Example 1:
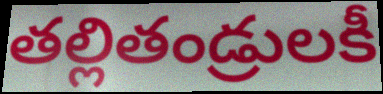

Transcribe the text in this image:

తల్లితండ్రులకీ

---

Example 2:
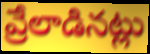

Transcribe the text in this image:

వ్రేలాడినట్లు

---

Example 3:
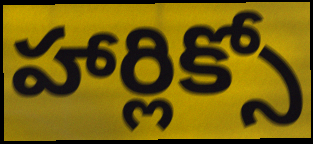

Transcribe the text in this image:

హార్లిక్సో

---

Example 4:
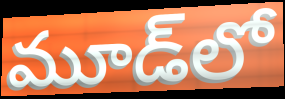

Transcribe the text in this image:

మూడ్‌లో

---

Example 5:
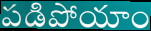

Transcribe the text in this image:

పడిపోయాం